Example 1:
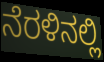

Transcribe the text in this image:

ನೆರಳಿನಲ್ಲಿ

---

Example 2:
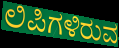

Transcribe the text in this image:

ಲಿಪಿಗಳಿರುವ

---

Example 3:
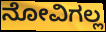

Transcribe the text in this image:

ನೋವಿಗಲ್ಲ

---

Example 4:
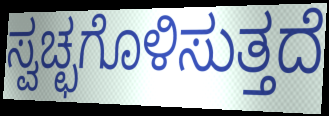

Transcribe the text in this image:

ಸ್ವಚ್ಛಗೊಳಿಸುತ್ತದೆ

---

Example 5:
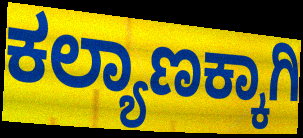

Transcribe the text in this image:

ಕಲ್ಯಾಣಕ್ಕಾಗಿ